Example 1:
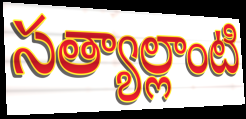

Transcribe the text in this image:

సత్యాల్లాంటి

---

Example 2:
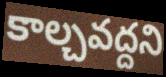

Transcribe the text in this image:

కాల్చవద్దని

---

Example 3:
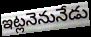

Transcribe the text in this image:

ఇట్లనెనునేడు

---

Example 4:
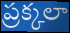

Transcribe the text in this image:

ప్రక్కలా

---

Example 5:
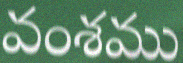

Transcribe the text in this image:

వంశము